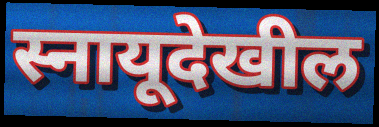
स्नायूदेखील